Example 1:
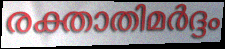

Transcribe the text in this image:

രക്താതിമർദ്ദം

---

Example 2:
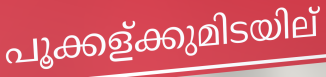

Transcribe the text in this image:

പൂക്കള്ക്കുമിടയില്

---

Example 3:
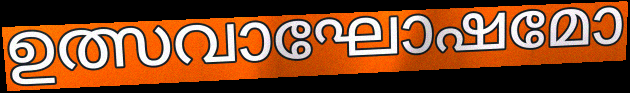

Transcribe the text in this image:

ഉത്സവാഘോഷമോ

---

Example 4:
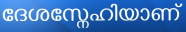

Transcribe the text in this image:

ദേശസ്നേഹിയാണ്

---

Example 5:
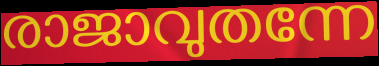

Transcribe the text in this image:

രാജാവുതന്നേ